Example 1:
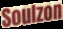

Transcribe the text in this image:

Soulzon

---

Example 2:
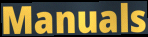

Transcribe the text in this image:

Manuals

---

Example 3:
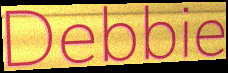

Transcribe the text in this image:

Debbie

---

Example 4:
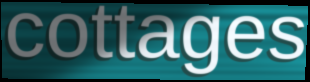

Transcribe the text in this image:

cottages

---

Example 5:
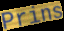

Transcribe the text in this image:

Prins